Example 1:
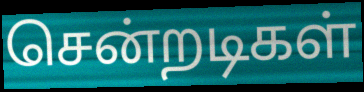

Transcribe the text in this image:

சென்றடிகள்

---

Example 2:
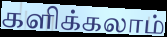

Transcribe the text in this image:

களிக்கலாம்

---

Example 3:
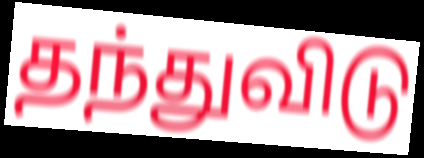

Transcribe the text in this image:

தந்துவிடு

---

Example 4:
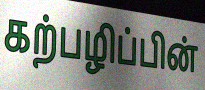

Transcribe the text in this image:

கற்பழிப்பின்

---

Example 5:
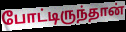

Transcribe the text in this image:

போட்டிருந்தான்